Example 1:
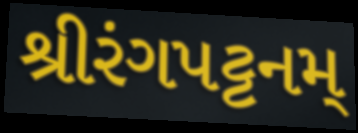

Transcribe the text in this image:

શ્રીરંગપટ્ટનમ્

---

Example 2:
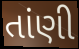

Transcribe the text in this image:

તાંણી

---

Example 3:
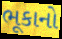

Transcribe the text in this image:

ભૂકાનો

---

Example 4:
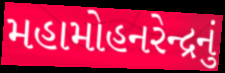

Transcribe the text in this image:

મહામોહનરેન્દ્રનું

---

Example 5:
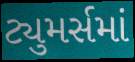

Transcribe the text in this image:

ટ્યુમર્સમાં